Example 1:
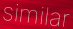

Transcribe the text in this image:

similar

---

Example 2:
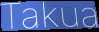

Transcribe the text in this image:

Takua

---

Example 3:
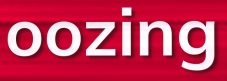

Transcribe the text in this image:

oozing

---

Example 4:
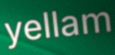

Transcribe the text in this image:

yellam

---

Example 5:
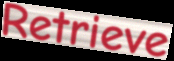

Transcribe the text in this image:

Retrieve